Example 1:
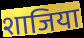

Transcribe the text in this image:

शाजिया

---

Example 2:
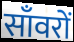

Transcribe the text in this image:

साँवरों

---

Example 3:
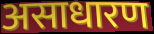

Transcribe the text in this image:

असाधारण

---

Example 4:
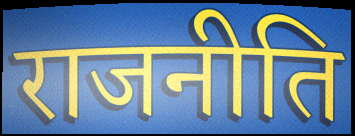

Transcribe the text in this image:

राजनीति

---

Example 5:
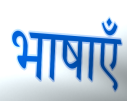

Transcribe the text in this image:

भाषाएँ